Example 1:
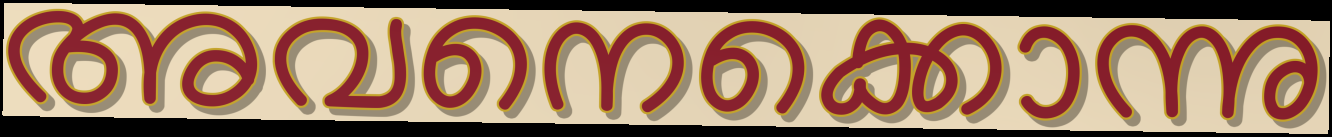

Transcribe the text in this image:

അവനെക്കൊന്നു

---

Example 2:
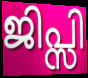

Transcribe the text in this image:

ജിപ്സി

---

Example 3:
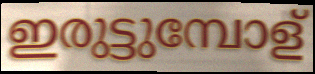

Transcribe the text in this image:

ഇരുട്ടുമ്പോള്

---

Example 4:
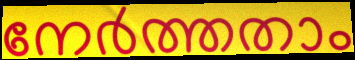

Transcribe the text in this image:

നേർത്തതാം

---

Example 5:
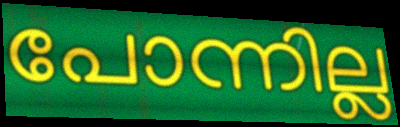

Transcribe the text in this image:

പോന്നില്ല